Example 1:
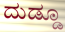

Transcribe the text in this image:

ದುಡ್ಡೂ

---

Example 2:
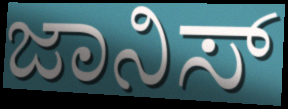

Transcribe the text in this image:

ಜಾನಿಸ್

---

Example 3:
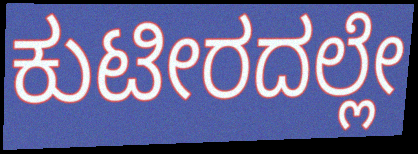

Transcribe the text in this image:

ಕುಟೀರದಲ್ಲೇ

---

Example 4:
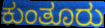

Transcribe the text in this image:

ಕುಂತೂರು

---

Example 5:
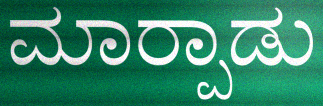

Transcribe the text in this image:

ಮಾರ‍್ಪಾಡು